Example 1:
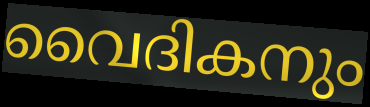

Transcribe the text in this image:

വൈദികനും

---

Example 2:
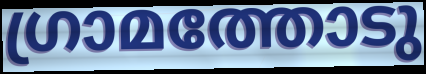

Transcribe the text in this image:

ഗ്രാമത്തോടു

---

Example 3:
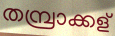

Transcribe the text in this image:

തമ്പ്രാക്കള്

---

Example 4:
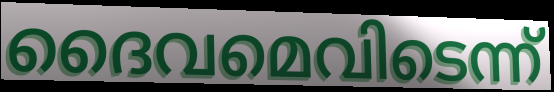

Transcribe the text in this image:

ദൈവമെവിടെന്ന്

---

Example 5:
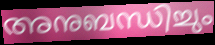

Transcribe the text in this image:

അനുബന്ധിച്ചും